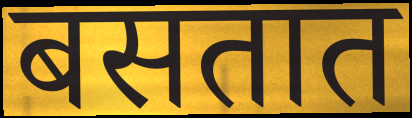
बसतात